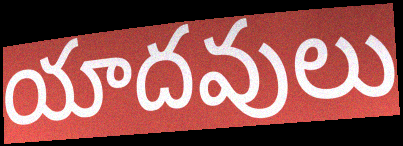
యాదవులు